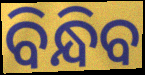
ବିନ୍ଧିବ